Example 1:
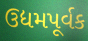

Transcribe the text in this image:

ઉદ્યમપૂર્વક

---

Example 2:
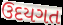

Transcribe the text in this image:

ઉદયગત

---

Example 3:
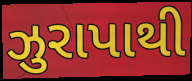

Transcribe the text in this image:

ઝુરાપાથી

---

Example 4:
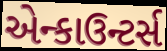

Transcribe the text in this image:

એન્કાઉન્ટર્સ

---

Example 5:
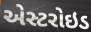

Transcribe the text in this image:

એસ્ટરોઇડ